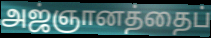
அஜ்ஞானத்தைப்